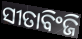
ସୀତାବିଂଜି